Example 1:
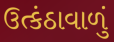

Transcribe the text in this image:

ઉત્કંઠાવાળું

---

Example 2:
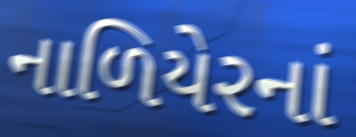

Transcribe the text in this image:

નાળિયેરનાં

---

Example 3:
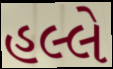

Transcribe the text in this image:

હલ્લે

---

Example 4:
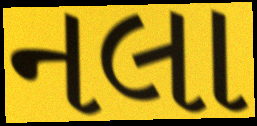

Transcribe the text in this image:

નલા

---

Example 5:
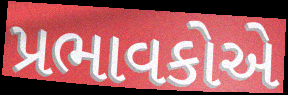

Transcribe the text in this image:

પ્રભાવકોએ